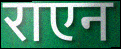
राएन